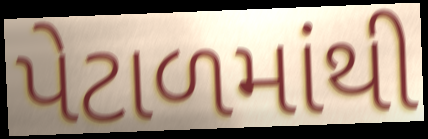
પેટાળમાંથી